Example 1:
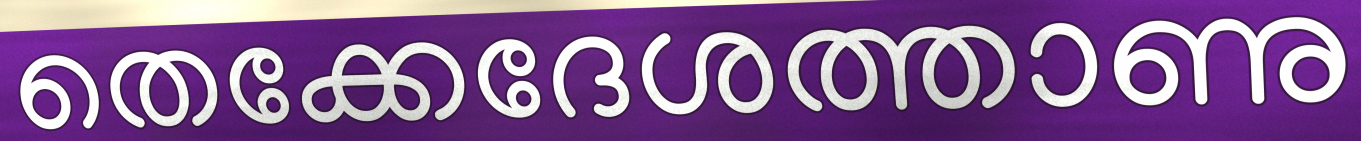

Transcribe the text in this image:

തെക്കേദേശത്താണു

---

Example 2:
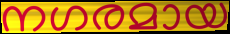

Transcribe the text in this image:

നഗരമായ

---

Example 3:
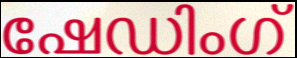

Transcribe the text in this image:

ഷേഡിംഗ്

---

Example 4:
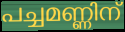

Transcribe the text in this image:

പച്ചമണ്ണിന്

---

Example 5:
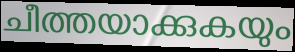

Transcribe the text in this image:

ചീത്തയാക്കുകയും